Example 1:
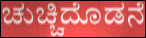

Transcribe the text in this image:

ಚುಚ್ಚಿದೊಡನೆ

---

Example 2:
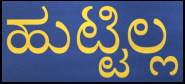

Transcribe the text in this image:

ಹುಟ್ಟಿಲ್ಲ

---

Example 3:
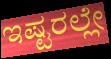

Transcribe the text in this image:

ಇಷ್ಟರಲ್ಲೇ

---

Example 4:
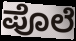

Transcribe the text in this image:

ಪೊಲೆ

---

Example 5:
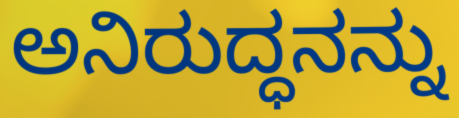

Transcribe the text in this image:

ಅನಿರುದ್ಧನನ್ನು